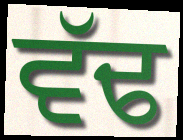
ਵੱਢ